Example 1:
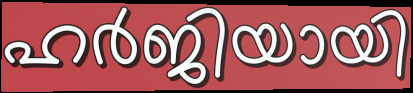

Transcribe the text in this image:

ഹർജിയായി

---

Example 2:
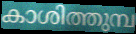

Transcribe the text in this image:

കാശിത്തുമ്പ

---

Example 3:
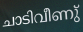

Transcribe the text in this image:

ചാടിവീണു്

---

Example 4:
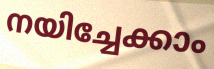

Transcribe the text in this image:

നയിച്ചേക്കാം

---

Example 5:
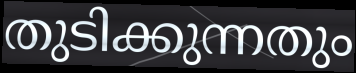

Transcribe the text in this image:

തുടിക്കുന്നതും